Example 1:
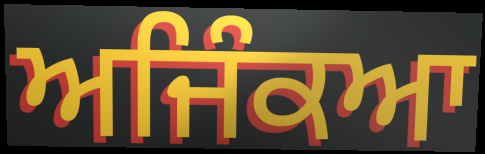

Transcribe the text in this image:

ਅਜਿੰਕਆ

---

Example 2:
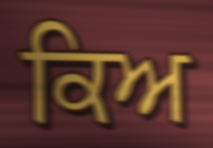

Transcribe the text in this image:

ਕਿਅ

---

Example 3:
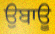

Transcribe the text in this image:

ਉਬਾਊ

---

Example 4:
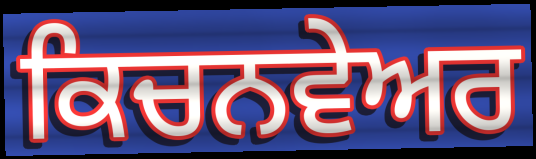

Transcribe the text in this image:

ਕਿਚਨਵੇਅਰ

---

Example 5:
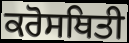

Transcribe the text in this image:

ਕਰੋਸਥਿਤੀ